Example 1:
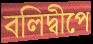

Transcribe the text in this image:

বলিদ্বীপে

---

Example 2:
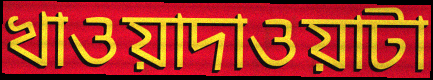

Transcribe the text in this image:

খাওয়াদাওয়াটা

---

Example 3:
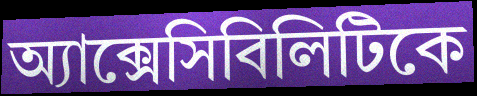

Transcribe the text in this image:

অ্যাক্সেসিবিলিটিকে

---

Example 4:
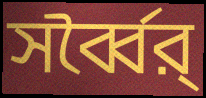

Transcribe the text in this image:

সর্ব্বৈর্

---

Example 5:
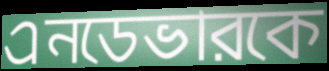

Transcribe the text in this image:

এনডেভারকে